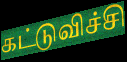
கட்டுவிச்சி